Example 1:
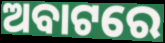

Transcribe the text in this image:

ଅବାଟରେ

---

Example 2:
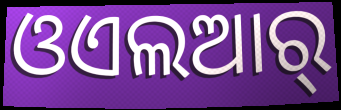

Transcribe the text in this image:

ଓଏଲଆର୍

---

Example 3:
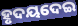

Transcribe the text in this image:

ହୃଦୟଦେଇ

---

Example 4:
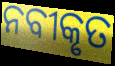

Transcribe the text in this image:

ନବୀକୃତ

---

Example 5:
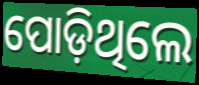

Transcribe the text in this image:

ପୋଡ଼ିଥିଲେ